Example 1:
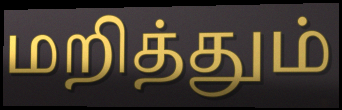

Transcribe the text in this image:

மறித்தும்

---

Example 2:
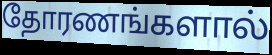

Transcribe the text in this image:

தோரணங்களால்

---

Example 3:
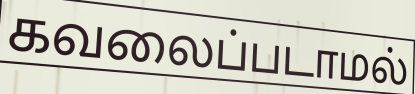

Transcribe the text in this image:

கவலைப்படாமல்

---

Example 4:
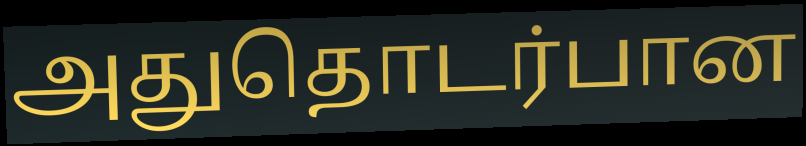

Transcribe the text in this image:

அதுதொடர்பான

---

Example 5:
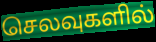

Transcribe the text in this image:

செலவுகளில்